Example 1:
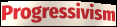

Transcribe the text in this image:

Progressivism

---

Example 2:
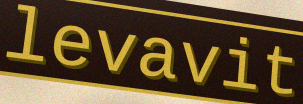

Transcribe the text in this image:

levavit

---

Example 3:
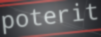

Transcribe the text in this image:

poterit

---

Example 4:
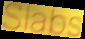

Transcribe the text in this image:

Slabs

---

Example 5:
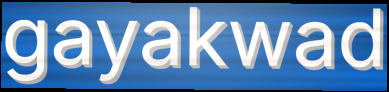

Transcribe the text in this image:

gayakwad